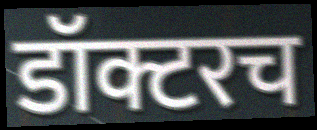
डॉक्टरच